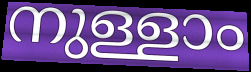
നുള്ളാം